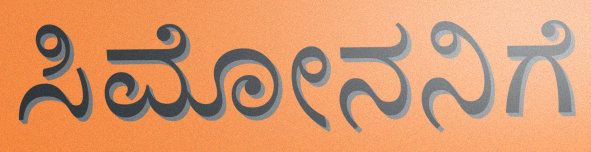
ಸಿಮೋನನಿಗೆ